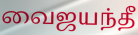
வைஜயந்தீ